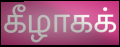
கீழாகக்